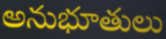
అనుభూతులు